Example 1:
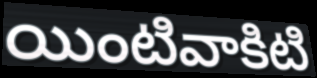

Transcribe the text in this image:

యింటివాకిటి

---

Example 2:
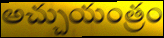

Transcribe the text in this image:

అచ్చుయంత్రం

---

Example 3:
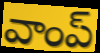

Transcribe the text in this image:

వాంప్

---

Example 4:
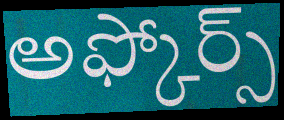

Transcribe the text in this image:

అఫ్కోర్స్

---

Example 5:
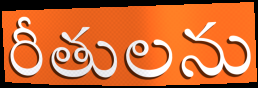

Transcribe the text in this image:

రీతులను